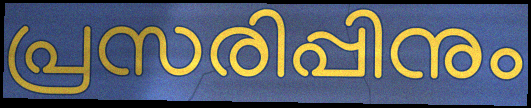
പ്രസരിപ്പിനും